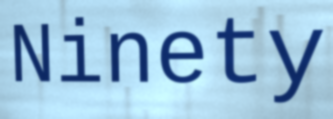
Ninety